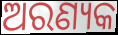
ଅରଣ୍ୟକ